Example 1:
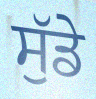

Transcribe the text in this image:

ਸੁੱਡੇ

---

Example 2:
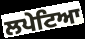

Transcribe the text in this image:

ਲਪੇਟਿਆ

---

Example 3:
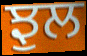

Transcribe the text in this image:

ਝੁਲ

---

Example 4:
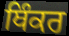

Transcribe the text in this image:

ਥਿੰਕਰ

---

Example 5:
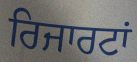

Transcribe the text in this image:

ਰਿਜਾਰਟਾਂ